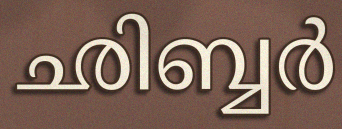
ഛിബ്ബർ